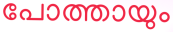
പോത്തായും